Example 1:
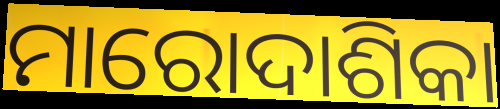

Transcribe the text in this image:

ମାରୋଦାଶିକା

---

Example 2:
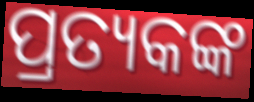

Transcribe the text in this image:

ପ୍ରତ୍ୟକଙ୍କ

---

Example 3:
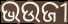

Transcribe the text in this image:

ଭଉଜୀ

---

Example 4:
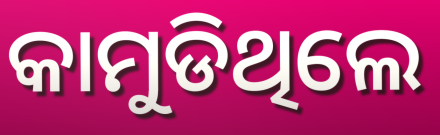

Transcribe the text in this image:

କାମୁଡିଥିଲେ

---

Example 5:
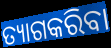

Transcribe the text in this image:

ତ୍ୟାଗକରିବା